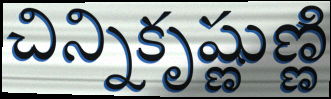
చిన్నికృష్ణుణ్ణి